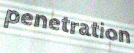
penetration